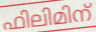
ഫിലിമിന്